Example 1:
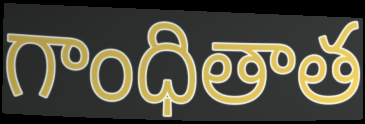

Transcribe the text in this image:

గాంధితాత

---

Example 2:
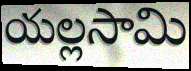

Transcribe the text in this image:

యల్లసామి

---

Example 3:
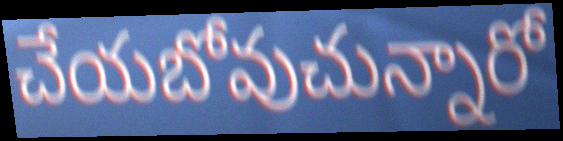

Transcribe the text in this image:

చేయబోవుచున్నారో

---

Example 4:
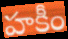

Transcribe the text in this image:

హకీం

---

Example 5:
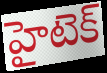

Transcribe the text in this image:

హైటెక్